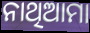
ନାଥିଆମା